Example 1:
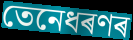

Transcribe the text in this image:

তেনেধৰণৰ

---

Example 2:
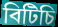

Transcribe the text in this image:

বিটিচি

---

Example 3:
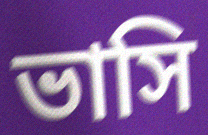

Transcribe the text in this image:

ভাসি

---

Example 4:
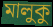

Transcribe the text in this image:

মালুকু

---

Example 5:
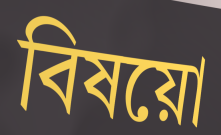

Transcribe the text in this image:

বিষয়ো